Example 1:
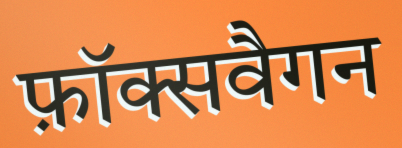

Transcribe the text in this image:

फ़ॉक्सवैगन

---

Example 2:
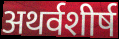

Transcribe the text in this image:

अथर्वशीर्ष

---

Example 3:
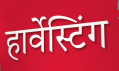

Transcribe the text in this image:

हार्वेस्टिंग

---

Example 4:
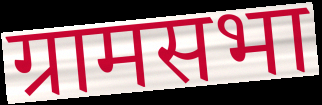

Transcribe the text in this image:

ग्रामसभा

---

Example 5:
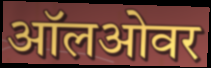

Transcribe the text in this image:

ऑलओवर